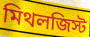
মিথলজিস্ট